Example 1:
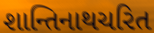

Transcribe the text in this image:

શાન્તિનાથચરિત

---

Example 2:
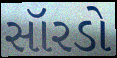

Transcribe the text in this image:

સૉરડો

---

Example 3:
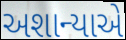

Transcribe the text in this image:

અશાન્યાએ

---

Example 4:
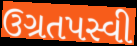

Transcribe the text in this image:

ઉગ્રતપસ્વી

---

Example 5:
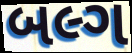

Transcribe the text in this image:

બલ્ગ